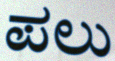
ಪಲು